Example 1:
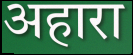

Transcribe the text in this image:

अहारा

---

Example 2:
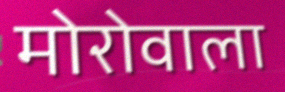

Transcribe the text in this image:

मोरोवाला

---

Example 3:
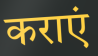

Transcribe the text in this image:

कराएं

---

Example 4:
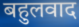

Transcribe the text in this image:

बहुलवाद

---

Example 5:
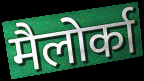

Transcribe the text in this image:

मैलोर्का